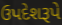
ઉપદેશરૂપે